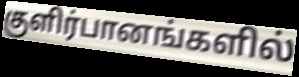
குளிர்பானங்களில்